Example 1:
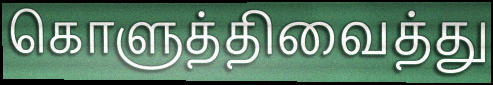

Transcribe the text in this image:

கொளுத்திவைத்து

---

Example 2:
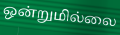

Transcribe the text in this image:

ஒன்றுமில்லை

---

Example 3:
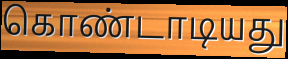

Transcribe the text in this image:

கொண்டாடியது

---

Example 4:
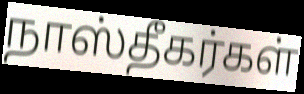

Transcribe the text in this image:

நாஸ்தீகர்கள்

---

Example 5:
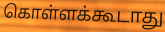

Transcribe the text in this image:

கொள்ளக்கூடாது